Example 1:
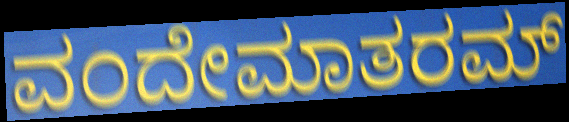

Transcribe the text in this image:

ವಂದೇಮಾತರಮ್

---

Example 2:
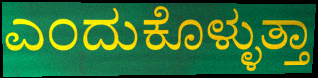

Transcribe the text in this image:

ಎಂದುಕೊಳ್ಳುತ್ತಾ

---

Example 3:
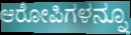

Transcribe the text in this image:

ಆರೋಪಿಗಳನ್ನೂ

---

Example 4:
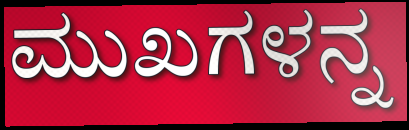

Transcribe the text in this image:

ಮುಖಗಳನ್ನ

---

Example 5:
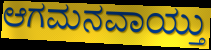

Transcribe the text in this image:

ಆಗಮನವಾಯ್ತು